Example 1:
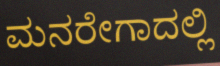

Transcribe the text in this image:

ಮನರೇಗಾದಲ್ಲಿ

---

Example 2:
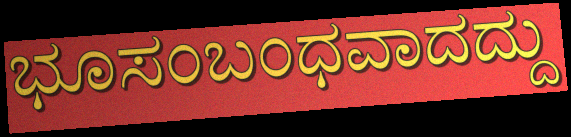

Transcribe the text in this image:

ಭೂಸಂಬಂಧವಾದದ್ದು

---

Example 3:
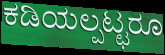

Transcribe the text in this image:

ಕಡಿಯಲ್ಪಟ್ಟರೂ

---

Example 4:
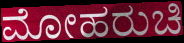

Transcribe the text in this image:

ಮೋಹರುಚಿ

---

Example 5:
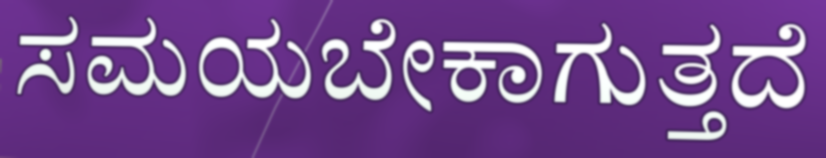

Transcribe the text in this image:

ಸಮಯಬೇಕಾಗುತ್ತದೆ